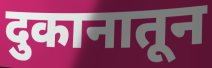
दुकानातून